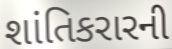
શાંતિકરારની